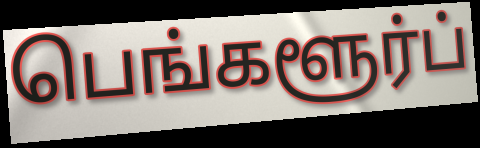
பெங்களூர்ப்